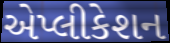
એપ્લીકેશન